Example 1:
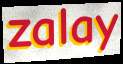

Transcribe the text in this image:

zalay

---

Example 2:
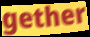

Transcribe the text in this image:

gether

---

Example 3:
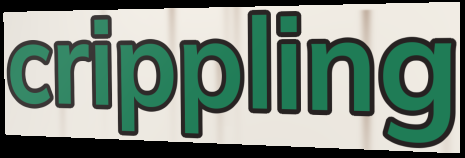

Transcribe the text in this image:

crippling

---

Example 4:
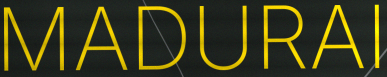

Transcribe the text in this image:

MADURAI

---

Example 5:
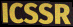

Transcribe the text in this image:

ICSSR